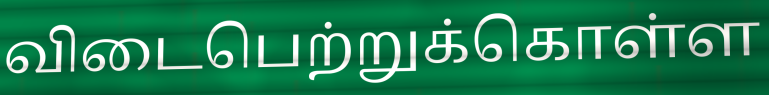
விடைபெற்றுக்கொள்ள